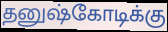
தனுஷ்கோடிக்கு